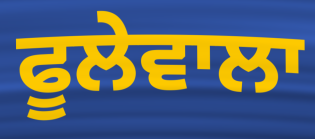
ਫੂਲੇਵਾਲਾ